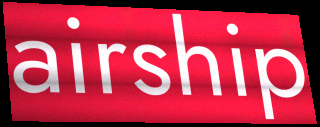
airship